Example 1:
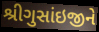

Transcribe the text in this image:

શ્રીગુસાંઇજીને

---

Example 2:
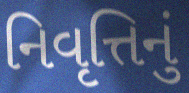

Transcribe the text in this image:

નિવૃત્તિનું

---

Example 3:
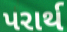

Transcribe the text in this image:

પરાર્થ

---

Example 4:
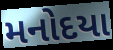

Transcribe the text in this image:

મનોદયા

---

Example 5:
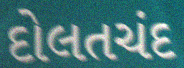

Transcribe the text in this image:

દોલતચંદ